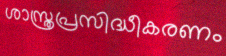
ശാസ്ത്രപ്രസിദ്ധീകരണം